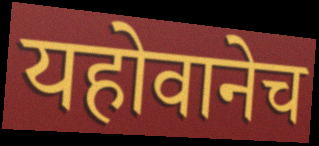
यहोवानेच